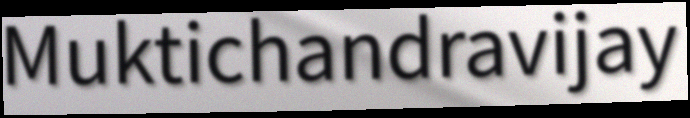
Muktichandravijay